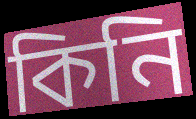
কিনি